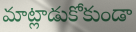
మాట్లాడుకోకుండా